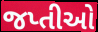
જપ્તીઓ